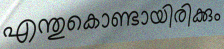
എന്തുകൊണ്ടായിരിക്കും